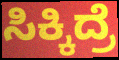
ಸಿಕ್ಕಿದ್ರೆ